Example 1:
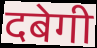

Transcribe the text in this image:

दबेगी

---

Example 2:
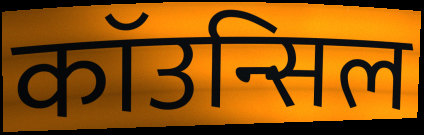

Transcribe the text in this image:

कॉउन्सिल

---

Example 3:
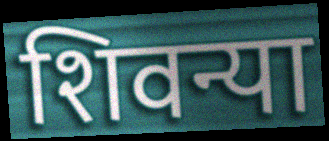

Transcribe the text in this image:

शिवन्या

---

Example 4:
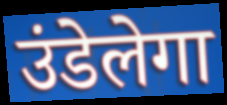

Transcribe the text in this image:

उंडेलेगा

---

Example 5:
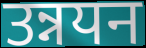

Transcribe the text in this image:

उन्नयन